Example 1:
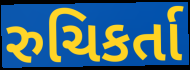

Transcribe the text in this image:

રુચિકર્તા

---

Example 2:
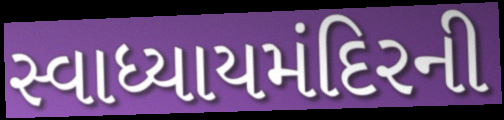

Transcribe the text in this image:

સ્વાધ્યાયમંદિરની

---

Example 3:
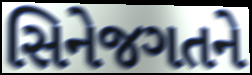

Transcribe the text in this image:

સિનેજગતને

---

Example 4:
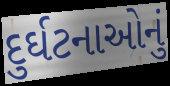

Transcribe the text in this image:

દુર્ઘટનાઓનું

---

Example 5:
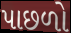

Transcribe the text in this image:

પાછળો